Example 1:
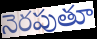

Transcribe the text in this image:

నెరపుతూ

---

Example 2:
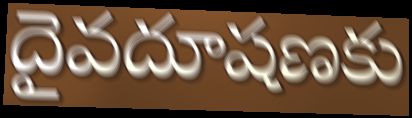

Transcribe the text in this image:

దైవదూషణకు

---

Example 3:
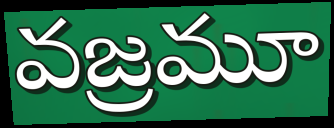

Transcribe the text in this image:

వజ్రమూ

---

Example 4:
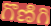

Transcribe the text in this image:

గొణిగి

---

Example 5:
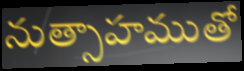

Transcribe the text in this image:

నుత్సాహముతో